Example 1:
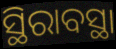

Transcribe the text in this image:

ସ୍ଥିରାବସ୍ଥା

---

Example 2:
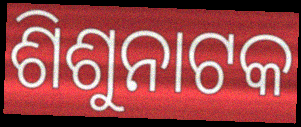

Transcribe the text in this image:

ଶିଶୁନାଟକ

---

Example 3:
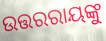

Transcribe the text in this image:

ଉତ୍ତରରାୟଙ୍କୁ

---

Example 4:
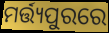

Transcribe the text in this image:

ମର୍ତ୍ତ୍ୟପୁରରେ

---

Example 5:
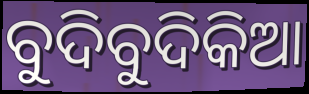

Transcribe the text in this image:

ବୁଦିବୁଦିକିଆ